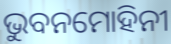
ଭୁବନମୋହିନୀ